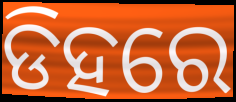
ଡିହରେ